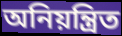
অনিয়ন্ত্রিত